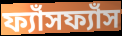
ফ্যাঁসফ্যাঁস